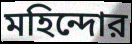
মহিন্দোর